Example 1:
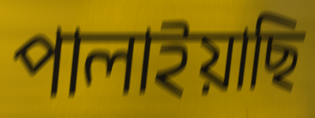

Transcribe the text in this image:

পালাইয়াছি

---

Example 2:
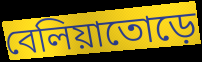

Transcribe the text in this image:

বেলিয়াতোড়ে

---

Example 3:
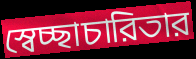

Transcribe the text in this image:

স্বেচ্ছাচারিতার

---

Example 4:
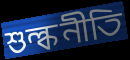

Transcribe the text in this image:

শুল্কনীতি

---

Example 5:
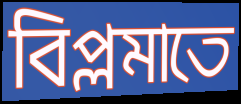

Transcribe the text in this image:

বিপ্লমাতে